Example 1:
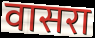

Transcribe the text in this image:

वासरा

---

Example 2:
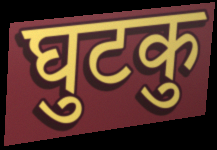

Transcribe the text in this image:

घुटकु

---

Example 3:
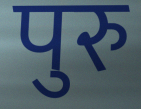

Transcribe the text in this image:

पुरु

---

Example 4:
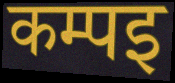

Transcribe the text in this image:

कम्पइ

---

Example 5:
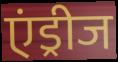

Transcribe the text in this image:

एंड्रीज